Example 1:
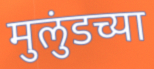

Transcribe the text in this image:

मुलुंडच्या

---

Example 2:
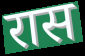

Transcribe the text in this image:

रास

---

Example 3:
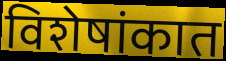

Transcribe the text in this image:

विशेषांकात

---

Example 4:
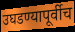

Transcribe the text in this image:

उघडण्यापूर्वीच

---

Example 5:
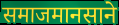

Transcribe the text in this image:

समाजमानसाने